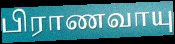
பிராணவாயு